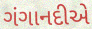
ગંગાનદીએ